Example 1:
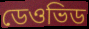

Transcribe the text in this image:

ডেওভিড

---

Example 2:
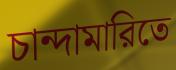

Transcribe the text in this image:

চান্দামারিতে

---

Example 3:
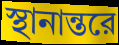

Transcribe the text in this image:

স্থানান্তরে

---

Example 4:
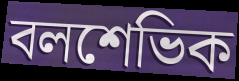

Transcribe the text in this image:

বলশেভিক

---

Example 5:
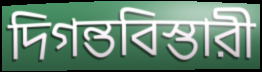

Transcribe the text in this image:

দিগন্তবিস্তারী